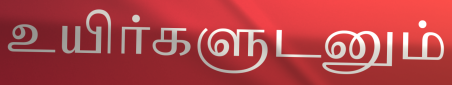
உயிர்களுடனும்